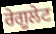
ਰੇਗੂਲੇਟ